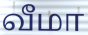
வீமா